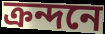
ক্রন্দনে